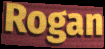
Rogan